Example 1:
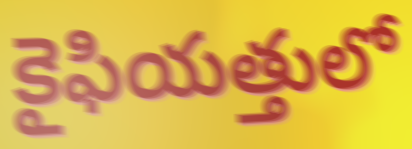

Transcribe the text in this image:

కైఫియత్తులో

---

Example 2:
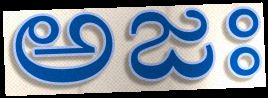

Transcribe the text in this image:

అజః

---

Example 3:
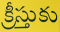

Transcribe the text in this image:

క్రీస్తుకు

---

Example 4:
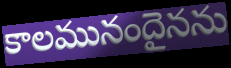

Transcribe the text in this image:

కాలమునందైనను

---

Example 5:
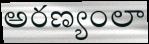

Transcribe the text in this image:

అరణ్యంలా